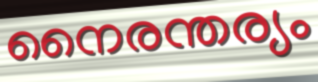
നൈരന്തര്യം